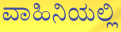
ವಾಹಿನಿಯಲ್ಲಿ